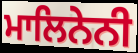
ਮਾਲਿਨੇਨੀ